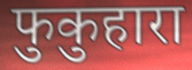
फुकुहारा